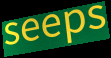
seeps